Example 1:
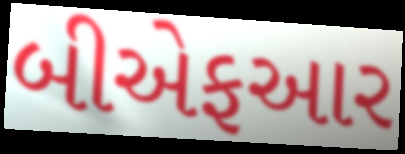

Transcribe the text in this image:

બીએફઆર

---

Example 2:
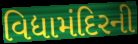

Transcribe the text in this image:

વિદ્યામંદિરની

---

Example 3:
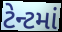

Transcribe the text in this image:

ટેન્ટમાં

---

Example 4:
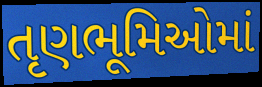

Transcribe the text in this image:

તૃણભૂમિઓમાં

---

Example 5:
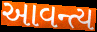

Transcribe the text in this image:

આવન્ત્ય